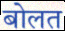
बोलत